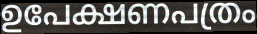
ഉപേക്ഷണപത്രം